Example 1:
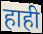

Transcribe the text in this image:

हाही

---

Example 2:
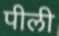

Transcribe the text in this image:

पीली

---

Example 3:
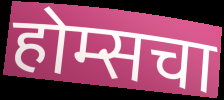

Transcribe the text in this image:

होम्सचा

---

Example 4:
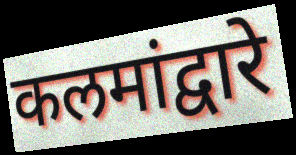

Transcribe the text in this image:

कलमांद्वारे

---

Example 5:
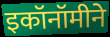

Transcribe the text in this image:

इकॉनॉमीने